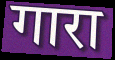
गारा